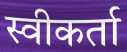
स्वीकर्ता